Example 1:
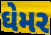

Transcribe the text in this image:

ઘેમર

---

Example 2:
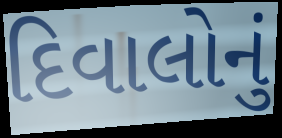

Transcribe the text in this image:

દિવાલોનું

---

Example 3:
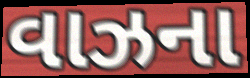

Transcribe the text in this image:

વાઝના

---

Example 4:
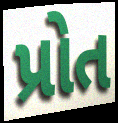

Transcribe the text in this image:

પ્રોત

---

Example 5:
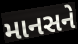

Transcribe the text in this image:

માનસને